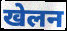
खेलन